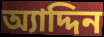
অ্যাদ্দিন